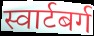
स्वार्टबर्ग